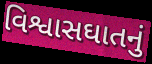
વિશ્વાસઘાતનું